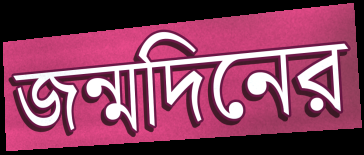
জন্মদিনের